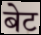
बेट